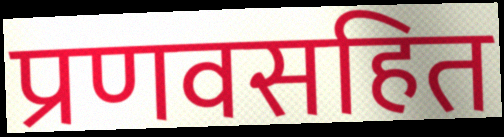
प्रणवसहित